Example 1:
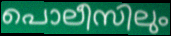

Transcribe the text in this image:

പൊലീസിലും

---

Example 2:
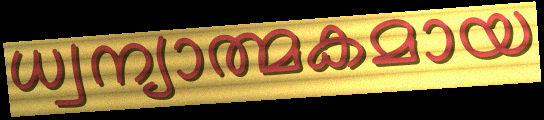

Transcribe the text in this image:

ധ്വന്യാത്മകമായ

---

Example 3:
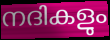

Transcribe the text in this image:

നദികളും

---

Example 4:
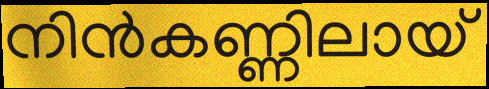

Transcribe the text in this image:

നിൻകണ്ണിലായ്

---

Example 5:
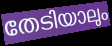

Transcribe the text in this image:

തേടിയാലും